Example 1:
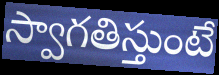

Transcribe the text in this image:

స్వాగతిస్తుంటే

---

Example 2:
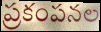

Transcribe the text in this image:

ప్రకంపనల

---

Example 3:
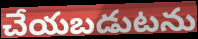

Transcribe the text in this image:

చేయబడుటను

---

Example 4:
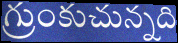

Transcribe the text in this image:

గ్రుంకుచున్నది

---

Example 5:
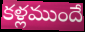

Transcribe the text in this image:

కళ్లముందే